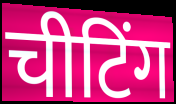
चीटिंग